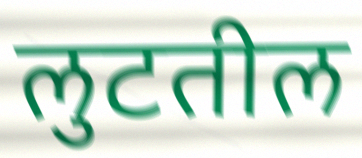
लुटतील